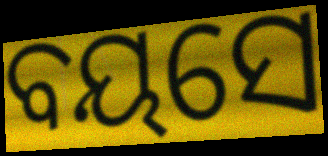
ବୟସେ